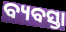
ବ୍ୟବସ୍ତା